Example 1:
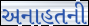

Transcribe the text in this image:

અનાહતની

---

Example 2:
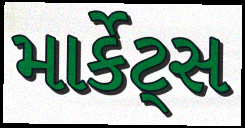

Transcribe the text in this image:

માર્કેટ્સ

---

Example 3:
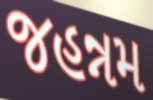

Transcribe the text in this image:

જહન્નમ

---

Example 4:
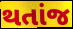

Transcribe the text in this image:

થતાંજ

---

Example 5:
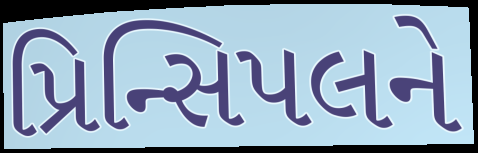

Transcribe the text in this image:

પ્રિન્સિપલને